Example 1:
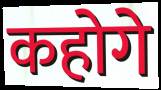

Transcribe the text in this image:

कहोगे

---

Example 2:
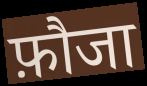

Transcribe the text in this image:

फ़ौजा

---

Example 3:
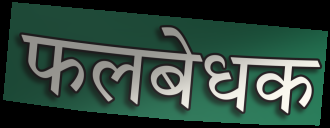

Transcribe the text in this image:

फलबेधक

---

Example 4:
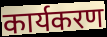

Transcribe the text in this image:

कार्यकरण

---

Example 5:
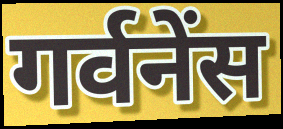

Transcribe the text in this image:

गर्वनेंस